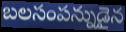
బలసంపన్నుడైన